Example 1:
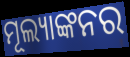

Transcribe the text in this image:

ମୂଲ୍ୟାଙ୍କନର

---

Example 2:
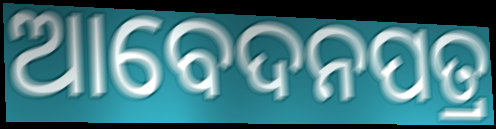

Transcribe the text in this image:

ଆବେଦନପତ୍ର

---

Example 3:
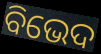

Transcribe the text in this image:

ବିଭେଦ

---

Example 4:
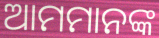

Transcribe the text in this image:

ଆମମାନଙ୍କ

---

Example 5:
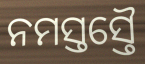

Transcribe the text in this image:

ନମସ୍ତସ୍ତୈ